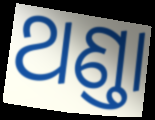
ଥଣ୍ଡା